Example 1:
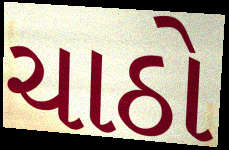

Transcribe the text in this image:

ચાઠો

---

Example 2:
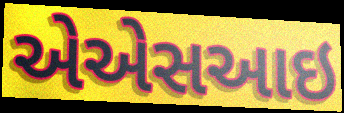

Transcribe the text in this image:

એએસઆઇ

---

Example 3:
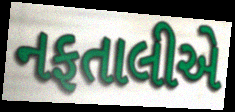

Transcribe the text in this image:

નફતાલીએ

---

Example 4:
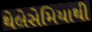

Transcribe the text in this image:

થેલેસેમિયાથી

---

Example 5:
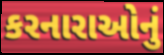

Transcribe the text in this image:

કરનારાઓનું